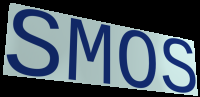
SMOS